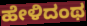
ಹೇಳಿದಂಥ